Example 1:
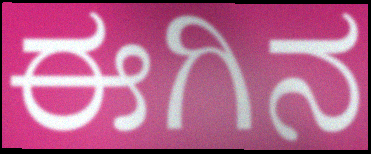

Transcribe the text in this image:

ಈಗಿನ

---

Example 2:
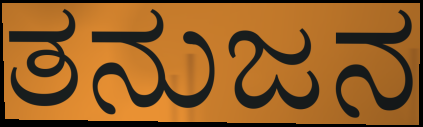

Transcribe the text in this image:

ತನುಜನ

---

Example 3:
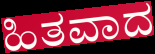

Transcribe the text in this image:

ಹಿತವಾದ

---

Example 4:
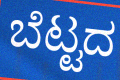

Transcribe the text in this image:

ಬೆಟ್ಟದ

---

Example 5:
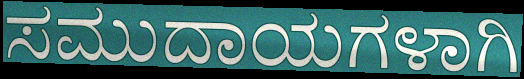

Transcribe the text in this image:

ಸಮುದಾಯಗಳಾಗಿ